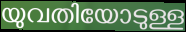
യുവതിയോടുള്ള